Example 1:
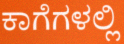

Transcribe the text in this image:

ಕಾಗೆಗಳಲ್ಲಿ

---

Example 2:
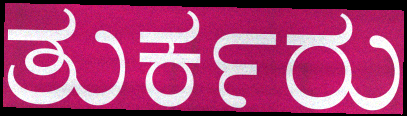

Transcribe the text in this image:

ತುರ್ಕರು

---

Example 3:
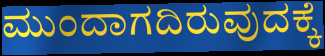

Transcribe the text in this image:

ಮುಂದಾಗದಿರುವುದಕ್ಕೆ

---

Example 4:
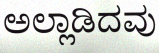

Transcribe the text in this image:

ಅಲ್ಲಾಡಿದವು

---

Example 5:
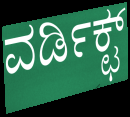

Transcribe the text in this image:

ವರ್ಡಿಕ್ಟ್